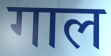
गाल